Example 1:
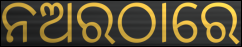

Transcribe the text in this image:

ନଅରଠାରେ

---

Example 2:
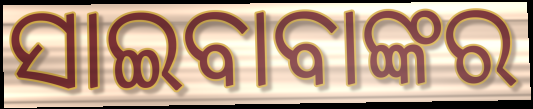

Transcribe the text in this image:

ସାଇବାବାଙ୍କର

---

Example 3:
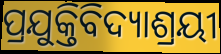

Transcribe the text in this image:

ପ୍ରଯୁକ୍ତିବିଦ୍ୟାଶ୍ରୟୀ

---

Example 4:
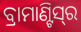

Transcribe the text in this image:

ବ୍ରାମାଣ୍ଟିସ୍‌ର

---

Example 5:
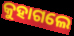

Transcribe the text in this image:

କୁହାଗଲେ